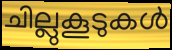
ചില്ലുകൂടുകൾ